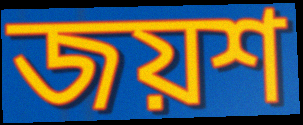
জয়শ